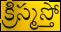
క్రిస్మస్తో